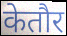
केतौर